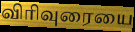
விரிவுரையை